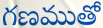
గణముతో